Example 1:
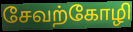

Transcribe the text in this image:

சேவற்கோழி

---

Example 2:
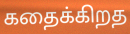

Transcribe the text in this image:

கதைக்கிறத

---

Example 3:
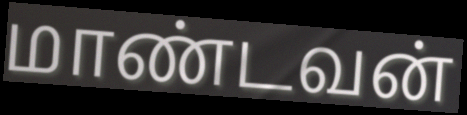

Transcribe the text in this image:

மாண்டவன்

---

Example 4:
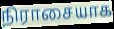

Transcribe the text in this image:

நிராசையாக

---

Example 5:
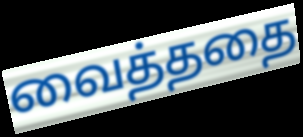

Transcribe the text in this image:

வைத்ததை